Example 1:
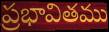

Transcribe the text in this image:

ప్రభావితము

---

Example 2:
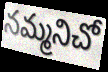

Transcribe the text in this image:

నమ్మనిచో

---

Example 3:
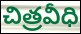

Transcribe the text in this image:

చిత్రవీధి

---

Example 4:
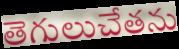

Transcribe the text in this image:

తెగులుచేతను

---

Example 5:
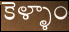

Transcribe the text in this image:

కెళ్ళాం